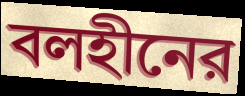
বলহীনের